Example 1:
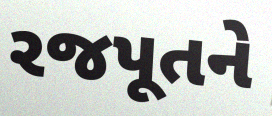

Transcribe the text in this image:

રજપૂતને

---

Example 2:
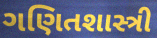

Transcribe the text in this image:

ગણિતશાસ્ત્રી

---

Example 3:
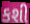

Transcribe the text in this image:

કશી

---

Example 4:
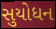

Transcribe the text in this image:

સુયોધન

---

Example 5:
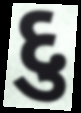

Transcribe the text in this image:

દુ